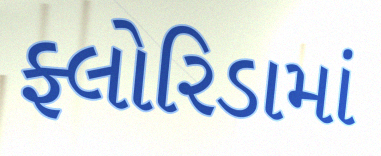
ફ્લોરિડામાં